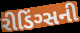
રીડિંગ્સની